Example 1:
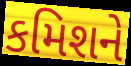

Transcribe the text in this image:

કમિશને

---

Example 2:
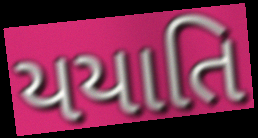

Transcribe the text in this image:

યયાતિ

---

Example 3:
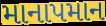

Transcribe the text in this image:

માનાપમાન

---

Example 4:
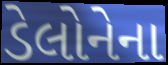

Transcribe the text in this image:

ડેલોનેના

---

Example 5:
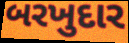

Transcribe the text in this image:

બરખુદાર